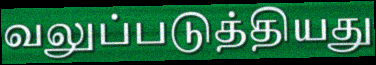
வலுப்படுத்தியது